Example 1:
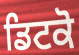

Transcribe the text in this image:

ਡਿਟਕੋ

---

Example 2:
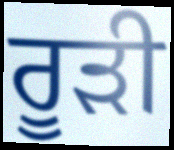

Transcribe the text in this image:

ਰੂੜੀ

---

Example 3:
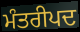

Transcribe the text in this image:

ਮੰਤਰੀਪਦ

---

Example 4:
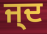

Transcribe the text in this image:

ਜ੍ਦ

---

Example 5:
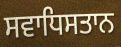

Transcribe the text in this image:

ਸਵਾਧਿਸਤਾਨ